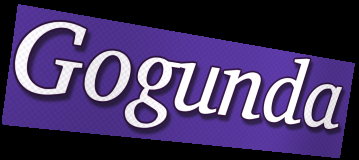
Gogunda